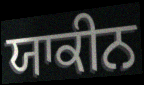
ਯਾਕੀਨ